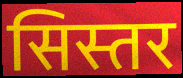
सिस्तर